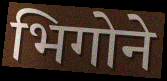
भिगोने